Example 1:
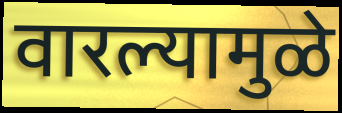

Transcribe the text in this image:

वारल्यामुळे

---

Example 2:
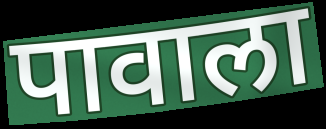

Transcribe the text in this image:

पावाला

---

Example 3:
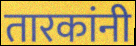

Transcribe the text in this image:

तारकांनी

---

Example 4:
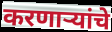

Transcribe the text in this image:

करणाऱ्यांचे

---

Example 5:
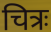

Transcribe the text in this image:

चित्रः